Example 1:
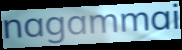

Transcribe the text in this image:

nagammai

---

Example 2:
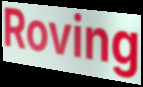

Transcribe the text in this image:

Roving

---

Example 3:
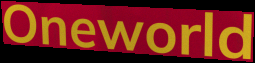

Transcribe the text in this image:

Oneworld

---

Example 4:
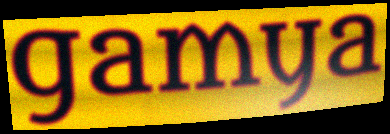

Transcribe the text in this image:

gamya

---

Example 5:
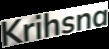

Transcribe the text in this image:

Krihsna